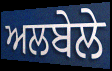
ਅਲਬੇਲੇ